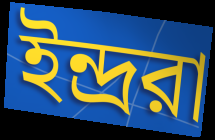
ইন্দ্ররা